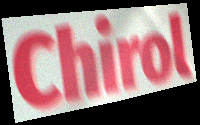
Chirol